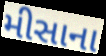
મીસાના